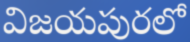
విజయపురలో